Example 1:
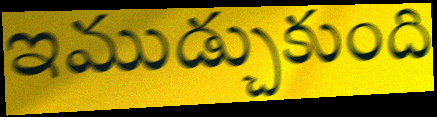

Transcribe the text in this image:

ఇముడ్చుకుంది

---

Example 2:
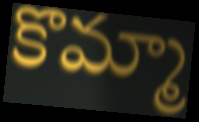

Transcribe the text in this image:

కొమ్మా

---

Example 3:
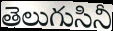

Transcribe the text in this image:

తెలుగుసినీ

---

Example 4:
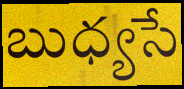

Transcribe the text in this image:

బుధ్యసే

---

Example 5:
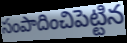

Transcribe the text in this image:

సంపాదించిపెట్టిన